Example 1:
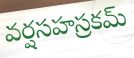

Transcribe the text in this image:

వర్షసహస్రకమ్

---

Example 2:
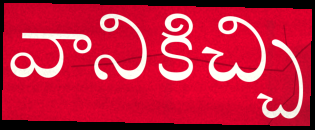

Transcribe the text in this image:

వానికిచ్చి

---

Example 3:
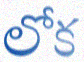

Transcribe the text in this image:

లోక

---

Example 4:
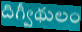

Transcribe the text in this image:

దిగ్వీథులం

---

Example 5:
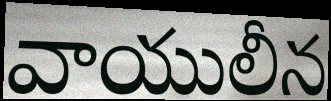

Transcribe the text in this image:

వాయులీన